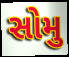
સોમુ